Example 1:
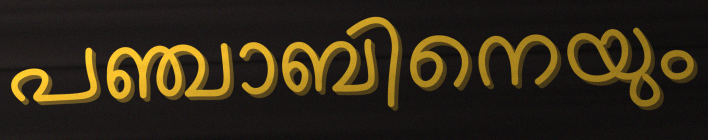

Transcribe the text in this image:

പഞ്ചാബിനെയും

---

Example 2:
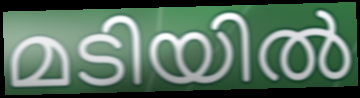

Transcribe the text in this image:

മടിയിൽ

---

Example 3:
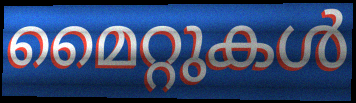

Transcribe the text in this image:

മൈറ്റുകൾ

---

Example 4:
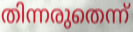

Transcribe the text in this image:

തിന്നരുതെന്ന്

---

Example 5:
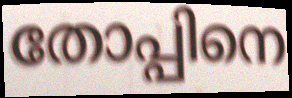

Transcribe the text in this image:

തോപ്പിനെ